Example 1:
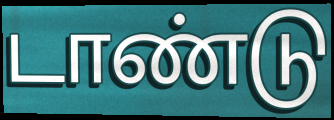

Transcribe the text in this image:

டாண்டு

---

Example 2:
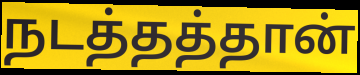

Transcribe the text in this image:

நடத்தத்தான்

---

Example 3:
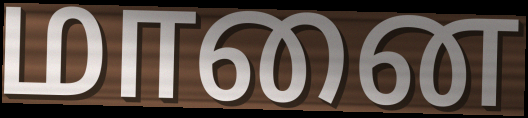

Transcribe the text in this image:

மானை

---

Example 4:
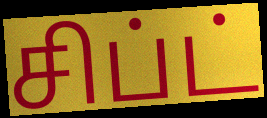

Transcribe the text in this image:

சிப்ட்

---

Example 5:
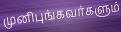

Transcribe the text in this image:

முனிபுங்கவர்களும்